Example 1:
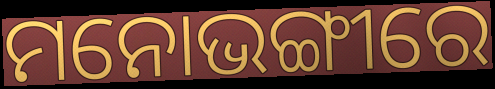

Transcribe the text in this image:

ମନୋଭଙ୍ଗୀରେ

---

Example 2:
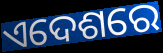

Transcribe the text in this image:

ଏଦେଶରେ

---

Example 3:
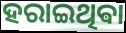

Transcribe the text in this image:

ହରାଇଥିଵା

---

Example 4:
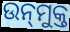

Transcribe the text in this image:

ଉନ୍‍ମୁକ୍ତ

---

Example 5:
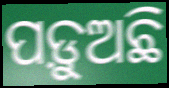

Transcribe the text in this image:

ପଡ଼ୁଅଛି